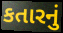
કતારનું